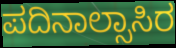
ಪದಿನಾಲ್ಸಾಸಿರ